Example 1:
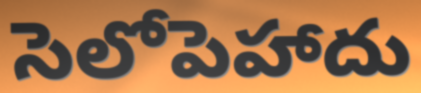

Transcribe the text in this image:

సెలోపెహాదు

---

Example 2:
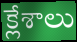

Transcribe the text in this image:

క్లేశాలు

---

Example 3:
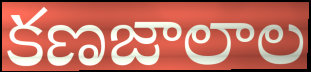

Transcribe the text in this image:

కణజాలాల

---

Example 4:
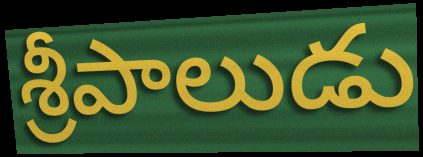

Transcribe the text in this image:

శ్రీపాలుడు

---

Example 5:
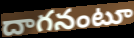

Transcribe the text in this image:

దాగనంటూ